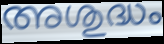
അശുദ്ധം